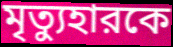
মৃত্যুহারকে